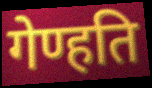
गेण्हति